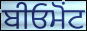
ਬੀਓਮੋਂਟ